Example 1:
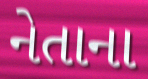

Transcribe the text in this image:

નેતાના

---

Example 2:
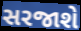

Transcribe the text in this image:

સરજાશે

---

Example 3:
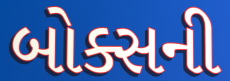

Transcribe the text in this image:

બોક્સની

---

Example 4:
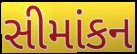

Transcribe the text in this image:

સીમાંકન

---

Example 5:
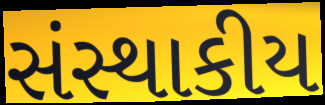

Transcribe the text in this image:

સંસ્થાકીય